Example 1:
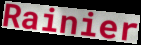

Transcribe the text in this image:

Rainier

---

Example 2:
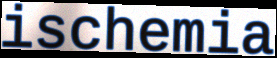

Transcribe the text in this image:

ischemia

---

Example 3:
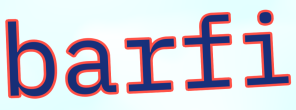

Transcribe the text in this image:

barfi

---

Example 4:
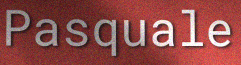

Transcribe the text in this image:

Pasquale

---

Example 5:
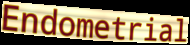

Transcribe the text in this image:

Endometrial